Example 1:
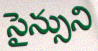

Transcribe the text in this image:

సైన్సుని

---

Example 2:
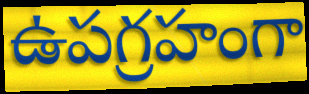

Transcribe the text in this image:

ఉపగ్రహంగా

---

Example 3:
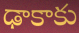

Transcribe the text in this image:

ఢాకాకు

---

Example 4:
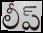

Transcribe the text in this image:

లీప్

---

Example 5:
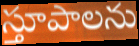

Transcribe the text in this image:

స్తూపాలను